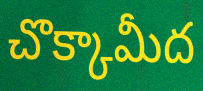
చొక్కామీద